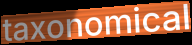
taxonomical